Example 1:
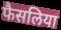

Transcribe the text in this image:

फैसलिया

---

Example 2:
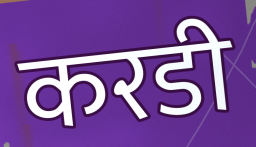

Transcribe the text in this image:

करडी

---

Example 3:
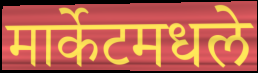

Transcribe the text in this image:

मार्केटमधले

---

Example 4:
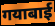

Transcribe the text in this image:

गयाबाई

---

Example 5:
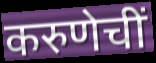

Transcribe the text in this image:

करुणेचीं